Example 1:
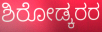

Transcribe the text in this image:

ಶಿರೋಡ್ಕರರ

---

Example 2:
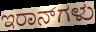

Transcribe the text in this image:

ಇರಾನ್‌ಗಳು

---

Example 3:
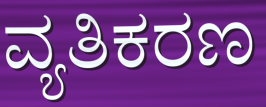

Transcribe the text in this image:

ವ್ಯತಿಕರಣ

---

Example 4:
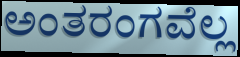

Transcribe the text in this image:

ಅಂತರಂಗವೆಲ್ಲ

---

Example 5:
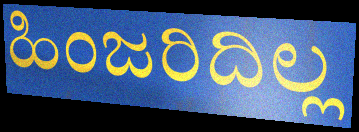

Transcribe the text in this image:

ಹಿಂಜರಿದಿಲ್ಲ